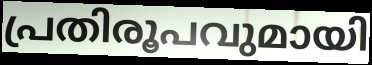
പ്രതിരൂപവുമായി